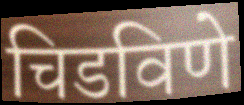
चिडविणे